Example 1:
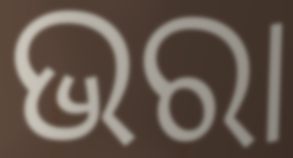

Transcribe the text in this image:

ଭରା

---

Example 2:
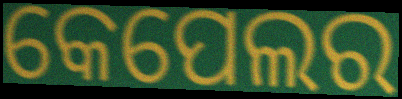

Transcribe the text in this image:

କେପେଲର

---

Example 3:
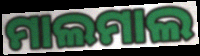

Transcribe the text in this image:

ମାଲମାଲ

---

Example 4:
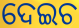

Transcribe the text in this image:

ଦେଇଚ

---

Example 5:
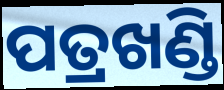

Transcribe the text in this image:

ପତ୍ରଖଣ୍ଡି